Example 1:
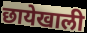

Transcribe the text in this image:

छायेखाली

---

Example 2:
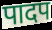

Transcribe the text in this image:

पादप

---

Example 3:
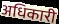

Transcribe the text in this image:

अधिकारी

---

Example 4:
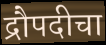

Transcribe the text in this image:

द्रौपदीचा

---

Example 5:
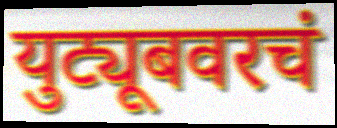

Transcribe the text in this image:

युट्यूबवरचं